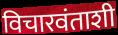
विचारवंताशी